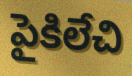
పైకిలేచి